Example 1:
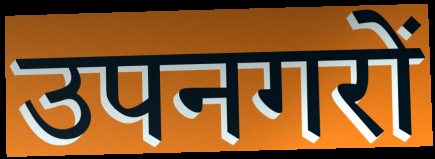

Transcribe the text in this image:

उपनगरों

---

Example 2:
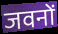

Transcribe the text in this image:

जवनों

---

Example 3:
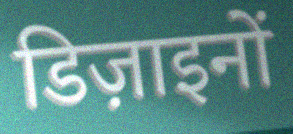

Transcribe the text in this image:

डिज़ाइनों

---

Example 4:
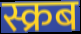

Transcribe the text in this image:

स्क्रब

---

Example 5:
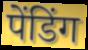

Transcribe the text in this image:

पेंडिंग